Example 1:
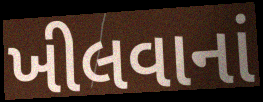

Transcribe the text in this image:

ખીલવાનાં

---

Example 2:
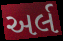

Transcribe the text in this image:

અર્લ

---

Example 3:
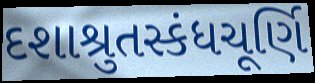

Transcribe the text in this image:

દશાશ્રુતસ્કંધચૂર્ણિ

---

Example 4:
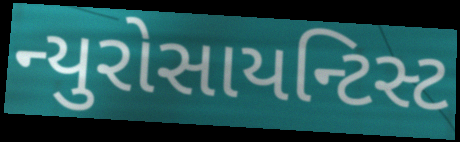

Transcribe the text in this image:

ન્યુરોસાયન્ટિસ્ટ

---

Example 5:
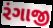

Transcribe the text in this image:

રંગાજી